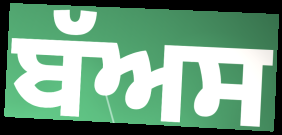
ਬੱਅਸ